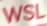
WSL